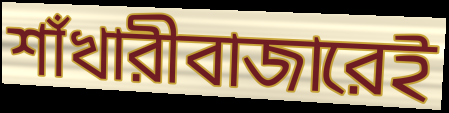
শাঁখারীবাজারেই